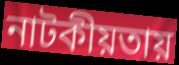
নাটকীয়তায়